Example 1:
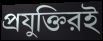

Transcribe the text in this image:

প্রযুক্তিরই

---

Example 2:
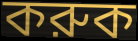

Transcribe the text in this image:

করুক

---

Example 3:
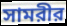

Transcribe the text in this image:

সামরীর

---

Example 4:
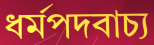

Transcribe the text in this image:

ধর্মপদবাচ্য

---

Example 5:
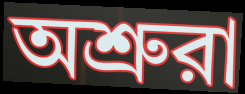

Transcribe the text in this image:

অশ্রুরা